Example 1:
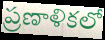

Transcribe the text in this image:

ప్రణాళికలో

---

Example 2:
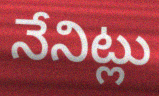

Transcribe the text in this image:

నేనిట్లు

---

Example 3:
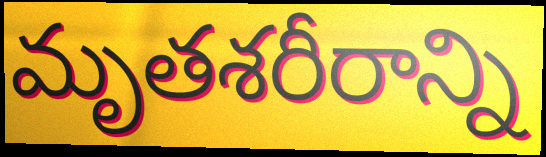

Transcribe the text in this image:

మృతశరీరాన్ని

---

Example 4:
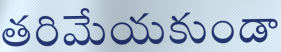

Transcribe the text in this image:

తరిమేయకుండా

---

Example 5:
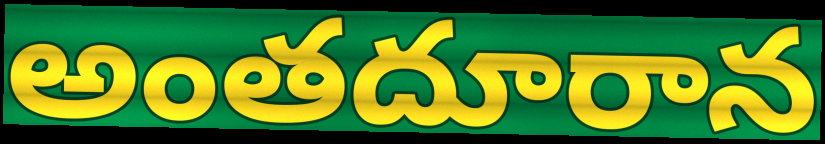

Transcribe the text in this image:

అంతదూరాన